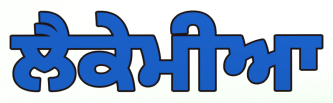
ਲੈਕੇਮੀਆ